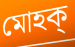
মোহক্